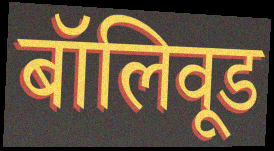
बॉलिवूड